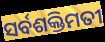
ସର୍ବଶକ୍ତିମତୀ